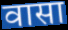
वासा